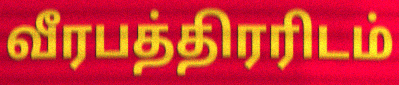
வீரபத்திரரிடம்